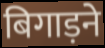
बिगाड़ने